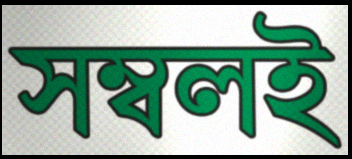
সম্বলই